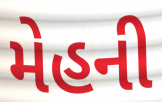
મેહની